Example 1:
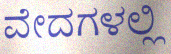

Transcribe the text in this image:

ವೇದಗಳಲ್ಲಿ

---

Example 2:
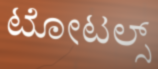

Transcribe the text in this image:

ಟೋಟಲ್ಸ್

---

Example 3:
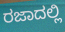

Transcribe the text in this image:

ರಜಾದಲ್ಲಿ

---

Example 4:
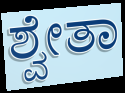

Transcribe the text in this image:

ಶ್ವೇತಾ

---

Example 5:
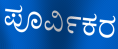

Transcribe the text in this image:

ಪೂರ್ವಿಕರ